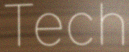
Tech